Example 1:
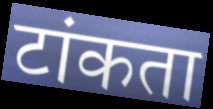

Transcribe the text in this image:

टांकता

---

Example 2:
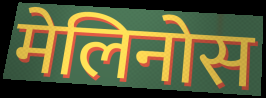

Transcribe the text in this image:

मेलिनोस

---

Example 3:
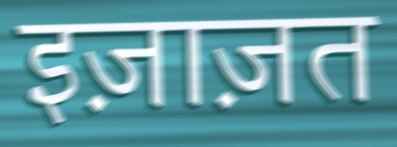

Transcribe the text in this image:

इज़ाज़त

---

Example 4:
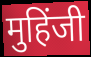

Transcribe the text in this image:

मुहिंजी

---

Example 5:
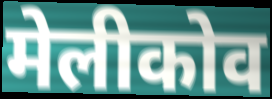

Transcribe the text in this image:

मेलीकोव